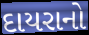
દાયરાનો